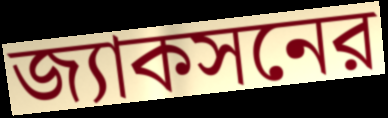
জ্যাকসনের